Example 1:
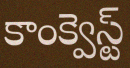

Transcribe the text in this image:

కాంక్వెస్ట్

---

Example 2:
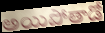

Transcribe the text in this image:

అయిపోతాడో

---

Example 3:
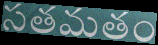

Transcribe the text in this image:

సతమతం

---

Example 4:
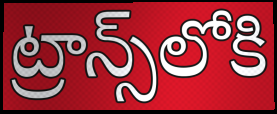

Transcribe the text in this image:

ట్రాన్స్‌లోకి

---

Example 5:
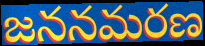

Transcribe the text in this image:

జననమరణ